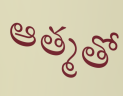
ఆత్మతో